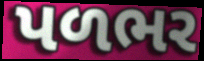
પળભર